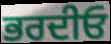
ਭਰਦੀਓ